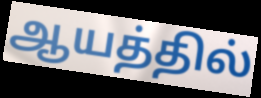
ஆயத்தில்